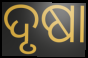
ଦୃଷା